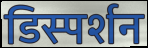
डिस्पर्शन